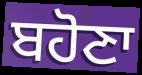
ਬਹੋਣਾ